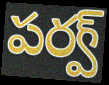
పర్వ్